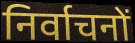
निर्वाचनों